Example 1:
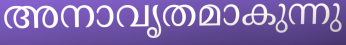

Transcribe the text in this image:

അനാവൃതമാകുന്നു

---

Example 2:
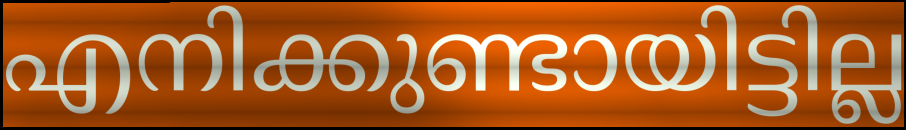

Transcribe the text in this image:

എനിക്കുണ്ടായിട്ടില്ല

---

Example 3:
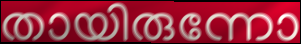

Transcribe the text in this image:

തായിരുന്നോ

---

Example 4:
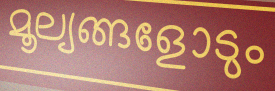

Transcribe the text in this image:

മൂല്യങ്ങളോടും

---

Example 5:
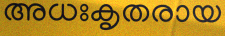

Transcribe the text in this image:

അധഃകൃതരായ